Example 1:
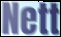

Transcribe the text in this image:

Nett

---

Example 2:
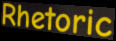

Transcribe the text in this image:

Rhetoric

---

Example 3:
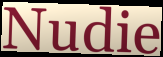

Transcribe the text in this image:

Nudie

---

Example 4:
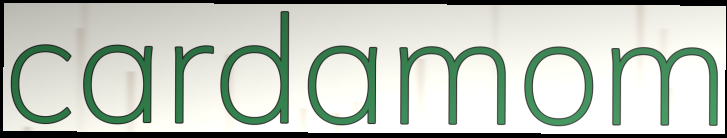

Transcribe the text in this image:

cardamom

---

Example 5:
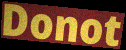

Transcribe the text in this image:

Donot